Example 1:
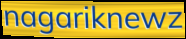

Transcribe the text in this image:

nagariknewz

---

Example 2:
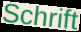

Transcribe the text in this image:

Schrift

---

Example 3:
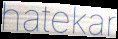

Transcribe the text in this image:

hatekar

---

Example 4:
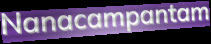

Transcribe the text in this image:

Nanacampantam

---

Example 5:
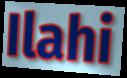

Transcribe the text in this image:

Ilahi